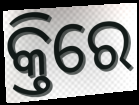
କ୍ତିରେ